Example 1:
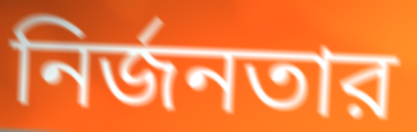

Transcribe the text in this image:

নির্জনতার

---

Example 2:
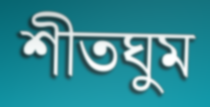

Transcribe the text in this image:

শীতঘুম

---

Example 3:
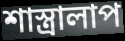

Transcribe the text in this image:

শাস্ত্রালাপ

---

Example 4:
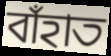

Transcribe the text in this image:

বাঁহাত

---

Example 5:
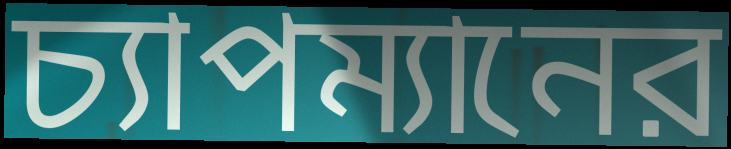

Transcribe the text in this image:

চ্যাপম্যানের